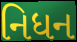
નિધન